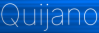
Quijano